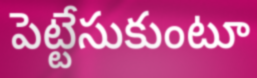
పెట్టేసుకుంటూ